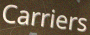
Carriers